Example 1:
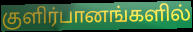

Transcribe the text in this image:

குளிர்பானங்களில்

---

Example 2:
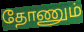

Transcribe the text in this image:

தோணும்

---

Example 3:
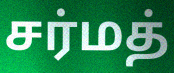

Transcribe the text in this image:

சர்மத்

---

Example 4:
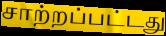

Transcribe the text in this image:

சாற்றப்பட்டது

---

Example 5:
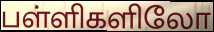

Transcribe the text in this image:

பள்ளிகளிலோ